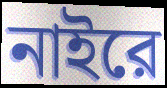
নাইরে